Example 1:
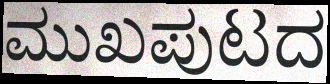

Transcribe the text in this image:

ಮುಖಪುಟದ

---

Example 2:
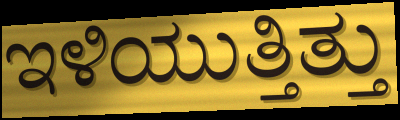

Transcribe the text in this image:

ಇಳಿಯುತ್ತಿತ್ತು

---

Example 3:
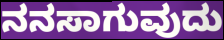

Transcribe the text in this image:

ನನಸಾಗುವುದು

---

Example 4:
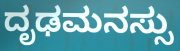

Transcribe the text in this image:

ದೃಢಮನಸ್ಸು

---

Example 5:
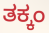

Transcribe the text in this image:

ತಕ್ಕಂ